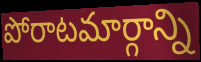
పోరాటమార్గాన్ని